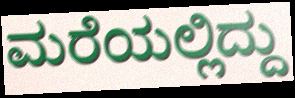
ಮರೆಯಲ್ಲಿದ್ದು